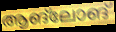
ആങ്‌ലോങ്